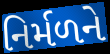
નિર્મળને